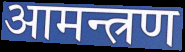
आमन्त्रण